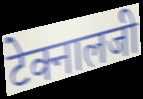
टेक्नालजी